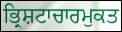
ਭ੍ਰਿਸ਼ਟਾਚਾਰਮੁਕਤ